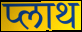
प्लाथ